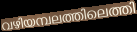
വഴിയമ്പലത്തിലെത്തി